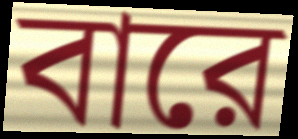
বারে